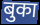
बुका